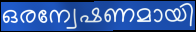
ഒരന്വേഷണമായി